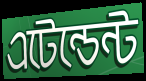
এটেন্ডেন্ট